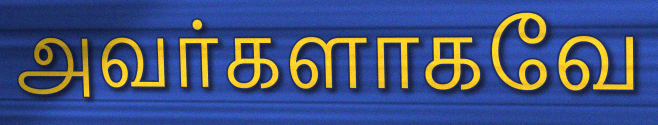
அவர்களாகவே